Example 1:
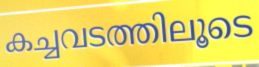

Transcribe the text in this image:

കച്ചവടത്തിലൂടെ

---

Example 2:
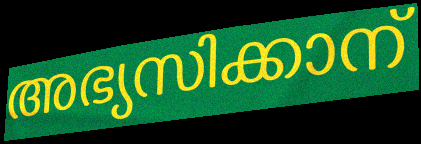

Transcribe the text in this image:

അഭ്യസിക്കാന്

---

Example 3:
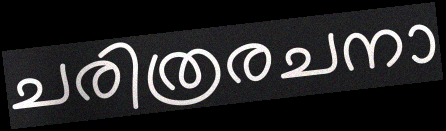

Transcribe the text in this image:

ചരിത്രരചനാ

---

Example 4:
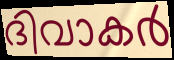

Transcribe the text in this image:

ദിവാകർ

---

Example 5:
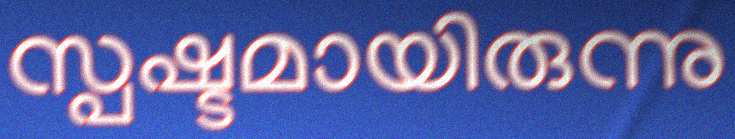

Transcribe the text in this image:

സ്പഷ്ടമായിരുന്നു